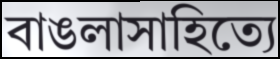
বাঙলাসাহিত্যে